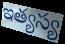
ఇత్యస్య